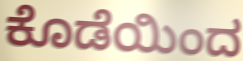
ಕೊಡೆಯಿಂದ